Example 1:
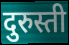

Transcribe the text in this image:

दुरुस्ती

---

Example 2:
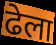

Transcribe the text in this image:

ढेला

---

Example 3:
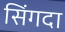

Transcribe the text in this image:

सिंगदा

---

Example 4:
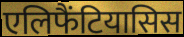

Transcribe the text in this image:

एलिफैंटियासिस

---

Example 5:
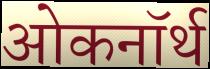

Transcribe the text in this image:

ओकनॉर्थ